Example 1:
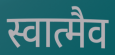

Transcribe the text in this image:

स्वात्मैव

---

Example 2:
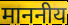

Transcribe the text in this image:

माननीय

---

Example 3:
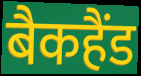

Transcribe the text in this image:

बैकहैंड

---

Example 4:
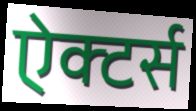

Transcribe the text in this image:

ऐक्‍टर्स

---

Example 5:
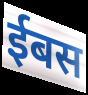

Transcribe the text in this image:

ईबस